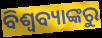
ବିଶ୍ୱବ୍ୟାଙ୍କରୁ